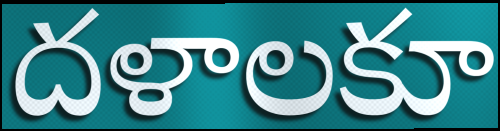
దళాలకూ